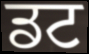
ਡਟ